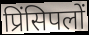
प्रिंसिपलों